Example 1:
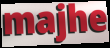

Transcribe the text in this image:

majhe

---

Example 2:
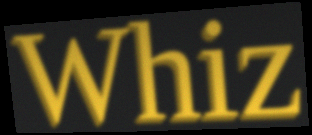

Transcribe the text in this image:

Whiz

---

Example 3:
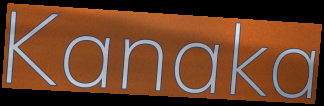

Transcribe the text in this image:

Kanaka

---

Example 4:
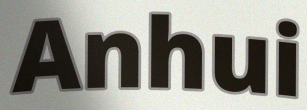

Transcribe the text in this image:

Anhui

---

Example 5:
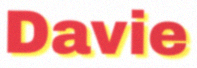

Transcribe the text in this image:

Davie